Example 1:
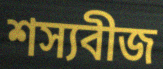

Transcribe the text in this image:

শস্যবীজ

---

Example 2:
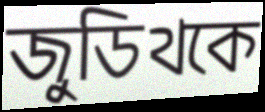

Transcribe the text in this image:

জুডিথকে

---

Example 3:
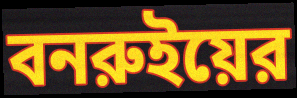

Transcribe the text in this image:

বনরুইয়ের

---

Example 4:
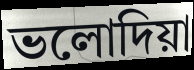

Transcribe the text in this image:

ভলোদিয়া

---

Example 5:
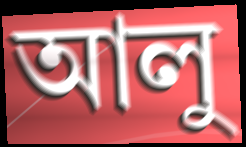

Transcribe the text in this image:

আলু